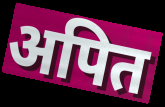
अपित